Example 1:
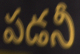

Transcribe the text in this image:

పడనీ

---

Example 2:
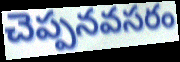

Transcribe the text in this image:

చెప్పనవసరం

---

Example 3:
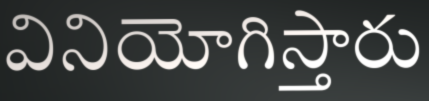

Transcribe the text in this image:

వినియోగిస్తారు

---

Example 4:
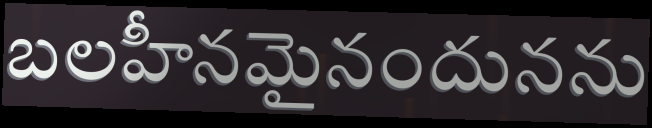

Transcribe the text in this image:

బలహీనమైనందునను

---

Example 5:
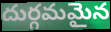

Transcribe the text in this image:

దుర్గమమైన